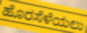
ಹೊರಸೆಳೆಯಲು